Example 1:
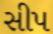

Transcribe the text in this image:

સીપ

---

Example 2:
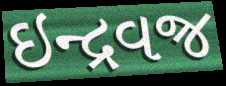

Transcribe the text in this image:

ઇન્દ્રવજ્ર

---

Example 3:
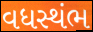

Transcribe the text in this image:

વધસ્થંભ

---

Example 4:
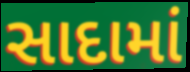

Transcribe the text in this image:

સાદામાં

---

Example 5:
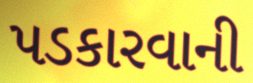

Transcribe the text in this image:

પડકારવાની